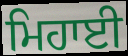
ਮਿਹਾਈ